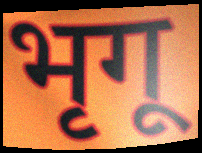
भृगू